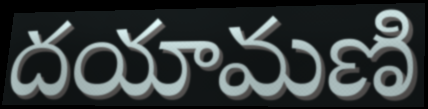
దయామణి